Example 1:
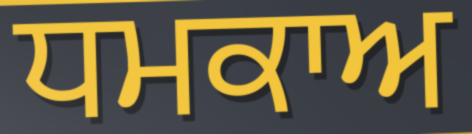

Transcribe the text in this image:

ਧਮਕਾਅ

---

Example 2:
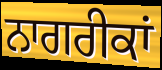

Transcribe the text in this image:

ਨਾਗਰੀਕਾਂ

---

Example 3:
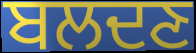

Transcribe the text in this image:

ਬਲਦਣ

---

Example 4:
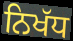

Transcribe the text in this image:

ਨਿਖੱਧ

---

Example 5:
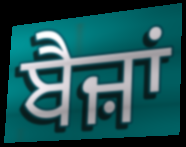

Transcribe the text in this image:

ਬੈਜ਼ਾਂ